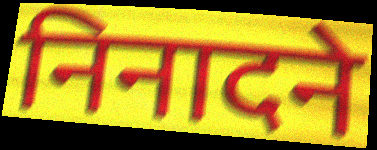
निनादने